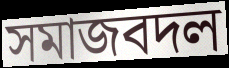
সমাজবদল